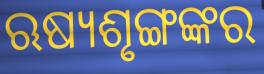
ଋଷ୍ୟଶୃଙ୍ଗଙ୍କର